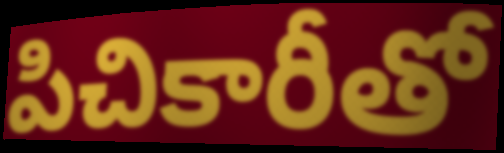
పిచికారీతో